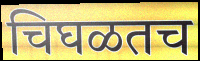
चिघळतच